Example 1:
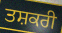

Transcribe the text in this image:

ਤਸ਼ਕਰੀ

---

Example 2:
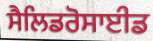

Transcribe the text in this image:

ਸੈਲਿਡਰੋਸਾਈਡ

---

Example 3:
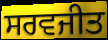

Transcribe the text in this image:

ਸਰਵਜੀਤ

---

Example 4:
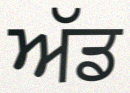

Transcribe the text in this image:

ਅੱਡ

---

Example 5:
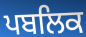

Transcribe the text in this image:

ਪਬਲਿਕ